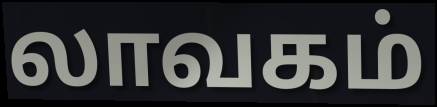
லாவகம்